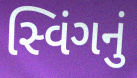
સ્વિંગનું